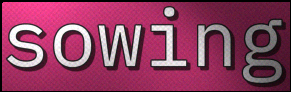
sowing